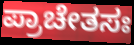
ಪ್ರಾಚೇತಸಃ